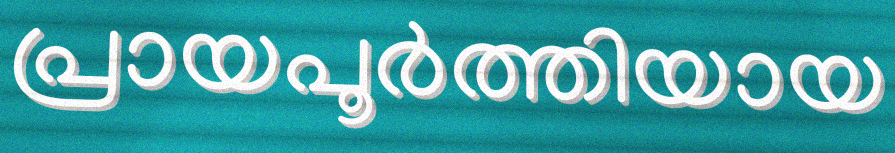
പ്രായപൂർത്തിയായ